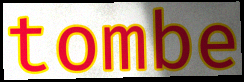
tombe